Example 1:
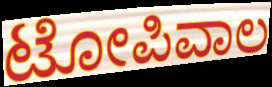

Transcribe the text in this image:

ಟೋಪಿವಾಲ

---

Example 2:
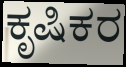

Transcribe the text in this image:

ಕೃಷಿಕರ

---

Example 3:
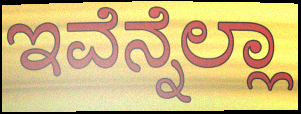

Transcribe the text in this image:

ಇವೆನ್ನೆಲ್ಲಾ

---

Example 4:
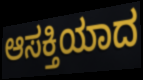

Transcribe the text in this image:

ಆಸಕ್ತಿಯಾದ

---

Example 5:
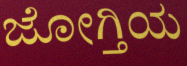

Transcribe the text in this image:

ಜೋಗ್ತಿಯ